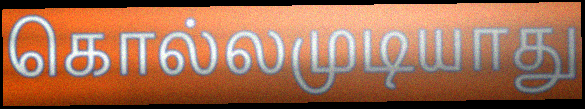
கொல்லமுடியாது